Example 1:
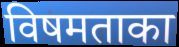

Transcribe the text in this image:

विषमताका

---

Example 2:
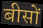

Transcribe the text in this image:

बीसों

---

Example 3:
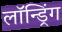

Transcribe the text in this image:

लॉन्ड्रिंग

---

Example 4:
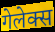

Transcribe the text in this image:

गेलेक्स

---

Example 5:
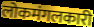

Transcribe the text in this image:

लोकमंगलकारी